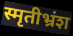
स्मृतीभ्रंश